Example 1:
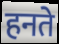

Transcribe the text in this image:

हनते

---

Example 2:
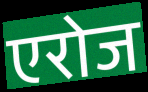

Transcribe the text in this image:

एरोज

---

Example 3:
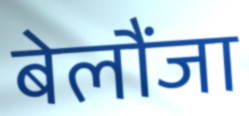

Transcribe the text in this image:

बेलौंजा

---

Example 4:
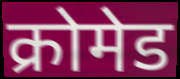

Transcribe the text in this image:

क्रोमेड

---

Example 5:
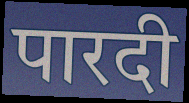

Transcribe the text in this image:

पारदी